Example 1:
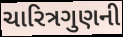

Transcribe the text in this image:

ચારિત્રગુણની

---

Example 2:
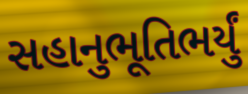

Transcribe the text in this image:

સહાનુભૂતિભર્યું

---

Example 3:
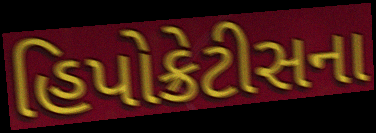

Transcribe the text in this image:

હિપોક્રેટીસના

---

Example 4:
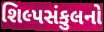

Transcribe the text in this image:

શિલ્પસંકુલનો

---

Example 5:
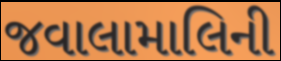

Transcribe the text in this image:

જવાલામાલિની